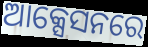
ଆକ୍ସେସନରେ